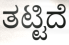
ತಟ್ಟಿದೆ